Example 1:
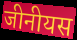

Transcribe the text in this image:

जीनीयस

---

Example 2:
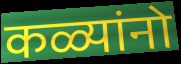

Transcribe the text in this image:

कळ्यांनो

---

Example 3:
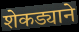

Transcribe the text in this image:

शेकड्याने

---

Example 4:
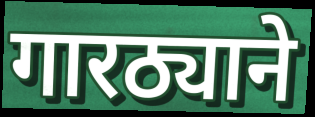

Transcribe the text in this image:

गारठ्याने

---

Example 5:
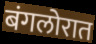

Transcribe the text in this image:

बंगलोरात